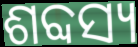
ଶବ୍ଦସ୍ଯ